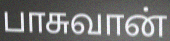
பாசுவான்